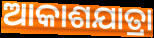
ଆକାଶଯାତ୍ରା